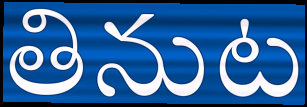
తినుట